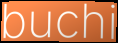
buchi